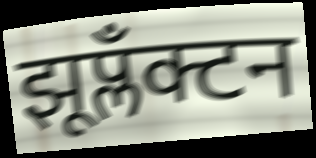
झूप्लँक्टन